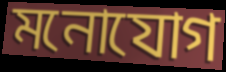
মনোযোগ